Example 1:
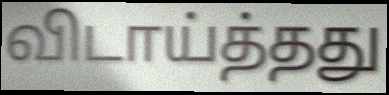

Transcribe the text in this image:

விடாய்த்தது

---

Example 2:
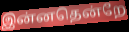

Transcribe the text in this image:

இன்னதென்றே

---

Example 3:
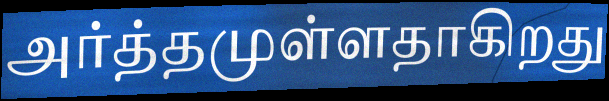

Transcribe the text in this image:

அர்த்தமுள்ளதாகிறது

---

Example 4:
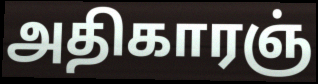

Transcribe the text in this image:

அதிகாரஞ்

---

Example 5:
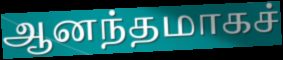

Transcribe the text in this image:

ஆனந்தமாகச்